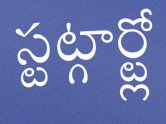
స్టట్గార్ట్లో